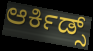
ಆರ್ಕಿಡ್ಸ್